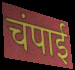
चंपाई